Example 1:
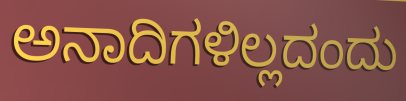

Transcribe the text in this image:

ಅನಾದಿಗಳಿಲ್ಲದಂದು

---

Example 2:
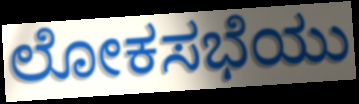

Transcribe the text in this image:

ಲೋಕಸಭೆಯು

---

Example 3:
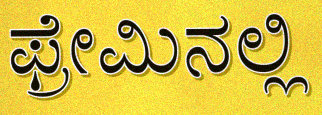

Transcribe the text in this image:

ಫ್ರೇಮಿನಲ್ಲಿ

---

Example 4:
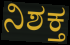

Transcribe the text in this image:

ನಿಶಕ್ತ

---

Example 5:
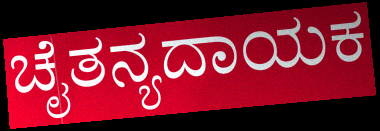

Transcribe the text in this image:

ಚೈತನ್ಯದಾಯಕ